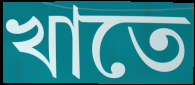
খাতে